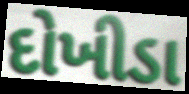
દોખીડા